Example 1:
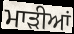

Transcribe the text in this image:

ਮਾੜੀਆਂ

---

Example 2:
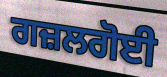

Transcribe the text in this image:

ਗਜ਼ਲਗੋਈ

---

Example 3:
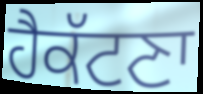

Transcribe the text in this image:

ਹੈਕੱਟਣਾ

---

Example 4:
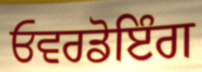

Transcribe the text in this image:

ਓਵਰਡੋਇੰਗ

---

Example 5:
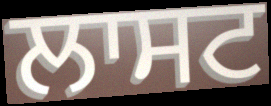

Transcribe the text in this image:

ਲਾਸਟ